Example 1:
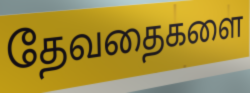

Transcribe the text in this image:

தேவதைகளை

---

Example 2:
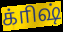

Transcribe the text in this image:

க்ரிஷ்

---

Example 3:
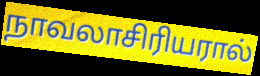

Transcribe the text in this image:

நாவலாசிரியரால்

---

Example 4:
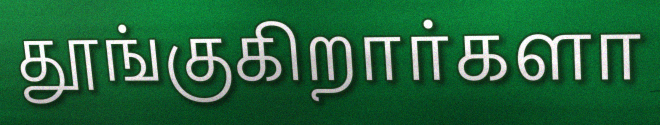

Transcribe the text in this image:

தூங்குகிறார்களா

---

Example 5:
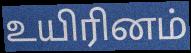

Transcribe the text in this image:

உயிரினம்